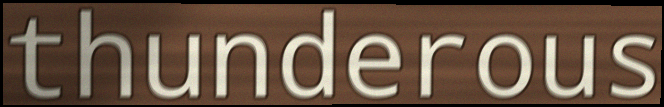
thunderous